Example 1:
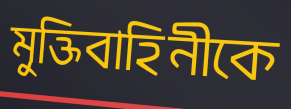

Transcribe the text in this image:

মুক্তিবাহিনীকে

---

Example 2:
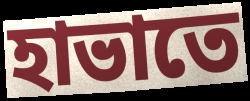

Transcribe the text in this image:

হাভাতে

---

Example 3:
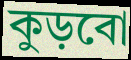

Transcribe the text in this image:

কুড়বো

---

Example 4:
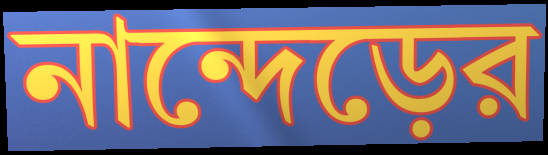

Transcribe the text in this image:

নান্দেড়ের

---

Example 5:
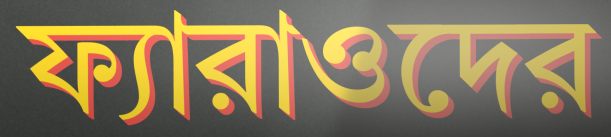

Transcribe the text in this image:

ফ্যারাওদের